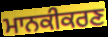
ਮਾਨਕੀਕਰਣ